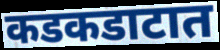
कडकडाटात